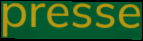
presse